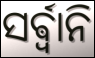
ସର୍ଵ୍ଵାନି